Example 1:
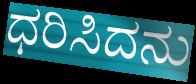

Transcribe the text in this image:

ಧರಿಸಿದನು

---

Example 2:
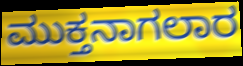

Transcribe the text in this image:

ಮುಕ್ತನಾಗಲಾರ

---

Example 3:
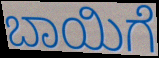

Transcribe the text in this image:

ಬಾಯಿಗೆ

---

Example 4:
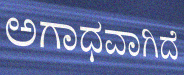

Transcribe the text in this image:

ಅಗಾಧವಾಗಿದೆ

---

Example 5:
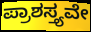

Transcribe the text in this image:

ಪ್ರಾಶಸ್ತ್ಯವೇ